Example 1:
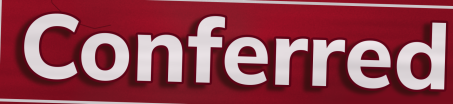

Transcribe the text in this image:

Conferred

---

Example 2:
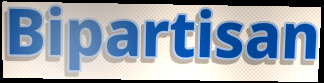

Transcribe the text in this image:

Bipartisan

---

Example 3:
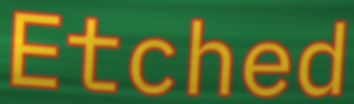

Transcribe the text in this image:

Etched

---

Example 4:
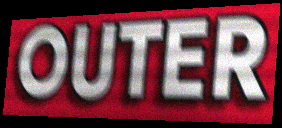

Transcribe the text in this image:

OUTER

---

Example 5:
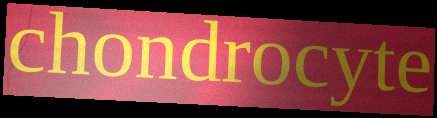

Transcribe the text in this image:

chondrocyte